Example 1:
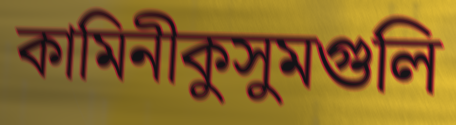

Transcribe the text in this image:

কামিনীকুসুমগুলি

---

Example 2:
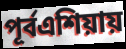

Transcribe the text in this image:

পূর্বএশিয়ায়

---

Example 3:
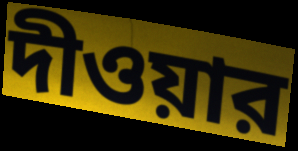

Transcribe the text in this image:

দীওয়ার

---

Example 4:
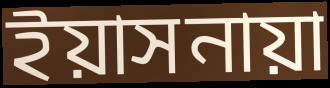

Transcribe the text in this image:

ইয়াসনায়া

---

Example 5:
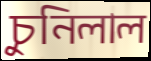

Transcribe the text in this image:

চুনিলাল